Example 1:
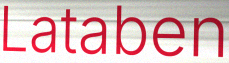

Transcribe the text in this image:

Lataben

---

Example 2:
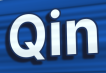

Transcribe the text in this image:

Qin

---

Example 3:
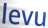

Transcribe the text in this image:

levu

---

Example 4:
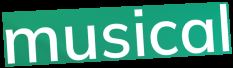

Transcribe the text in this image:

musical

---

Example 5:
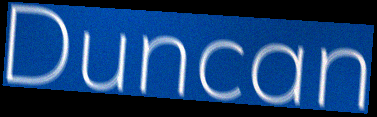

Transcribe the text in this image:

Duncan